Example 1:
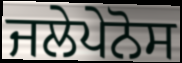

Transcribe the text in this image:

ਜਲੇਪੇਨੋਸ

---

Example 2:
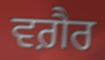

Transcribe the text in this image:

ਵਗ਼ੈਰ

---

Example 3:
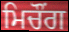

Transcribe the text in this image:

ਮਿਚੌਂਗ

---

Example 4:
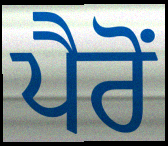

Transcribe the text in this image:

ਪੈਰੋਂ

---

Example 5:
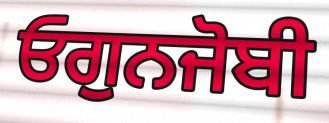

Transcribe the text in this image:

ਓਗੁਨਜੋਬੀ